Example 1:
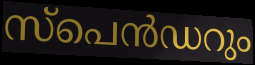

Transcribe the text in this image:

സ്പെൻഡറും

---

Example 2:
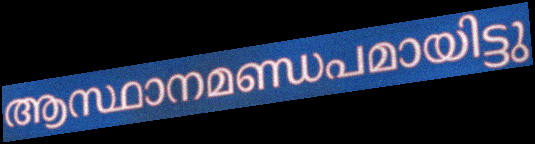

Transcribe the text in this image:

ആസ്ഥാനമണ്ഡപമായിട്ടു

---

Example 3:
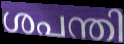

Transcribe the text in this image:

ശപന്തി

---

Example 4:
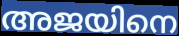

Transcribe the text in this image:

അജയിനെ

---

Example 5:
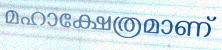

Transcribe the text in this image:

മഹാക്ഷേത്രമാണ്